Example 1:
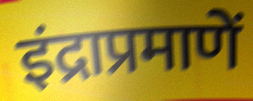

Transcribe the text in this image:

इंद्राप्रमाणें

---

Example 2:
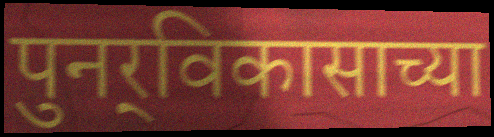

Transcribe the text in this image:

पुनर्विकासाच्या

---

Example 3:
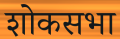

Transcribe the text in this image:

शोकसभा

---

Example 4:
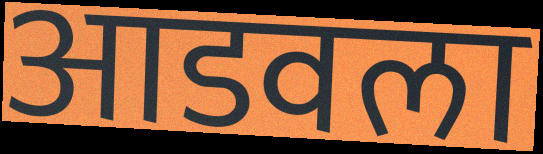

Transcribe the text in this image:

आडवला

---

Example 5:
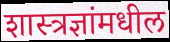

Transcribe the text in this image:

शास्त्रज्ञांमधील